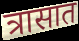
त्रासात